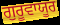
ਗੁਰੂਵਾਯੂਰ